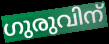
ഗുരുവിന്